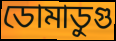
ডোমাডুগু